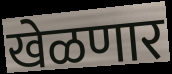
खेळणार